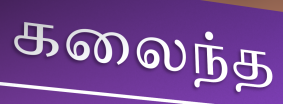
கலைந்த